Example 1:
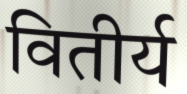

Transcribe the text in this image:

वितीर्य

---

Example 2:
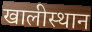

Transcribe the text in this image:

खालीस्थान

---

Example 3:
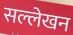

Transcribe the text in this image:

सल्लेखन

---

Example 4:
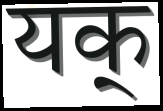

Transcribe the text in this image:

यक्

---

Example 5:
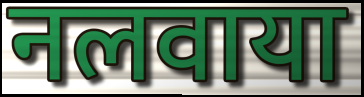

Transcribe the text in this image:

नलवाया